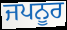
ਜਪਨੂਰ